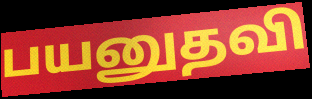
பயனுதவி